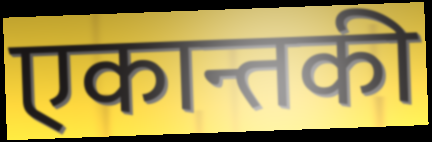
एकान्तकी